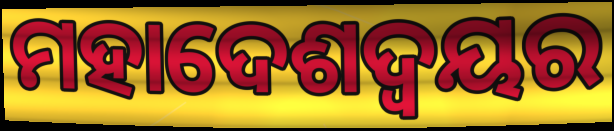
ମହାଦେଶଦ୍ଵୟର